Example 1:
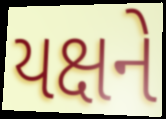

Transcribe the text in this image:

યક્ષને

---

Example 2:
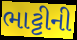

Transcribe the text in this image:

ભાટ્ટીની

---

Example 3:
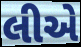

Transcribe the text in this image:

લીએ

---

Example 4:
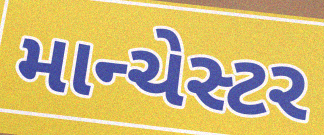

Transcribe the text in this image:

માન્ચેસ્ટર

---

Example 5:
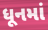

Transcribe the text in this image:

ધૂનમાં